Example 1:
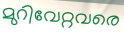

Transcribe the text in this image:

മുറിവേറ്റവരെ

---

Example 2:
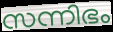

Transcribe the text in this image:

സന്നിഭം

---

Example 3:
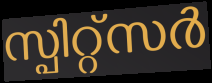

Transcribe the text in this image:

സ്പിറ്റ്സർ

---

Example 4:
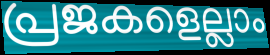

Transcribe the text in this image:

പ്രജകളെല്ലാം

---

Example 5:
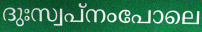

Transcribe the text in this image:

ദുഃസ്വപ്നംപോലെ